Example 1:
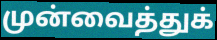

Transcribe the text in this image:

முன்வைத்துக்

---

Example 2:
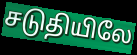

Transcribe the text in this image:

சடுதியிலே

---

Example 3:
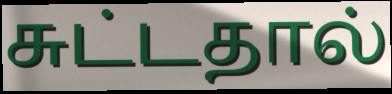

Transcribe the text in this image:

சுட்டதால்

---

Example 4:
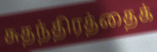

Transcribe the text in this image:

சுதந்திரத்தைக்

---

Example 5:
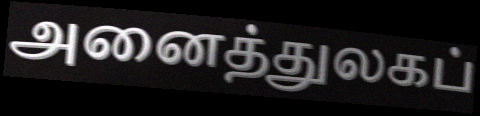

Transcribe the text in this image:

அனைத்துலகப்